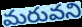
మరువని